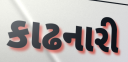
કાઢનારી